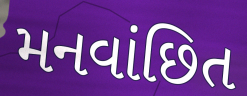
મનવાંછિત